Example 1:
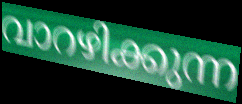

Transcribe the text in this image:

വാറഴിക്കുന്ന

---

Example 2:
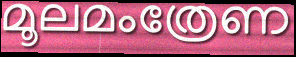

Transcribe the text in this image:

മൂലമംത്രേണ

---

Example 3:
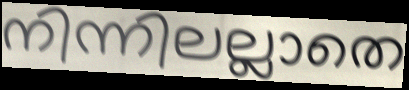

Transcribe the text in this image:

നിന്നിലല്ലാതെ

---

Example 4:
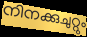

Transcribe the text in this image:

നിനക്കുചുറ്റും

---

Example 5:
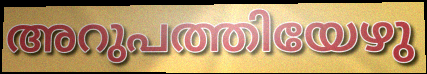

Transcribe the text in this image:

അറുപത്തിയേഴു